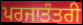
ਪਰਜਾਤੰਤਰੀ